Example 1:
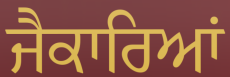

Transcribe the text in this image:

ਜੈਕਾਰਿਆਂ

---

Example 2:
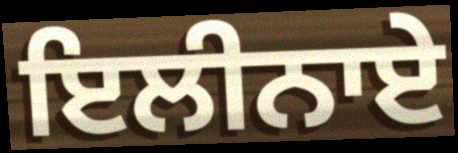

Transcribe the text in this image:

ਇਲੀਨਾਏ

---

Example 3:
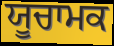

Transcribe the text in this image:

ਯੂਚਾਮਕ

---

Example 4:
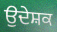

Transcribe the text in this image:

ਉਦੇਸ਼ਕ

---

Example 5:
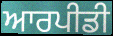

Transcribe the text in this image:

ਆਰਪੀਡੀ